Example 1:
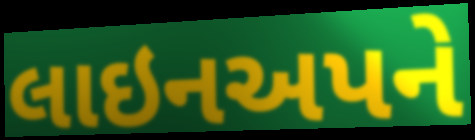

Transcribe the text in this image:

લાઇનઅપને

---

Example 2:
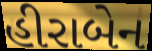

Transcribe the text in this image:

હીરાબેન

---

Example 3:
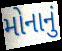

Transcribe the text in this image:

મોનાનું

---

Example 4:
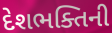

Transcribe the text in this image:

દેશભક્તિની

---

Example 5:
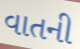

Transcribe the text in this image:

વાતની